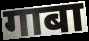
गाबा